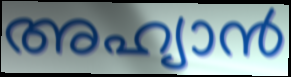
അഹ്യാൻ